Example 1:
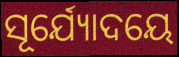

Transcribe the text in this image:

ସୂର୍ଯ୍ୟୋଦୟେ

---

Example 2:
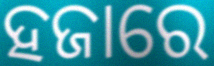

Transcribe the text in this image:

ହଜାରେ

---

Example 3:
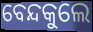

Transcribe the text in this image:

ବେନ୍ଦକୁଲେ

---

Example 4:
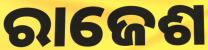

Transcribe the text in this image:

ରାଜେଶ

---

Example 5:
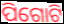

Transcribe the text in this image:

ପିଗୋଟି